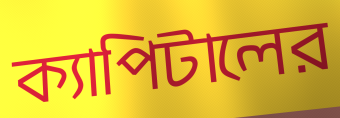
ক্যাপিটালের